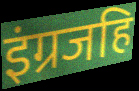
इंग्रजहि